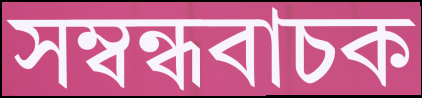
সম্বন্ধবাচক